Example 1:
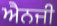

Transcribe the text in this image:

ਐਨਜੀ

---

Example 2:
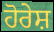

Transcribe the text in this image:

ਹੋਰੇਸ਼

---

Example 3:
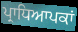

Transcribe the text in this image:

ਪ੍ਰਾਧਿਆਪਕਾਂ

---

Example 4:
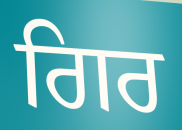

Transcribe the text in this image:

ਗਿਰ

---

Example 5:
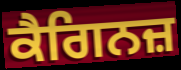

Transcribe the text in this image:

ਕੈਗਿਨਜ਼